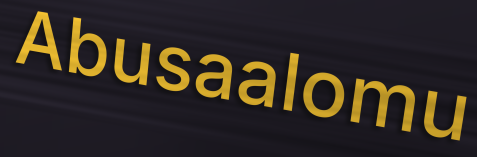
Abusaalomu